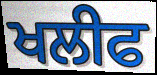
ਖਲੀਫ